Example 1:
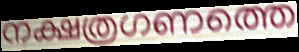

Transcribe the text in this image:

നക്ഷത്രഗണത്തെ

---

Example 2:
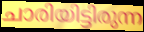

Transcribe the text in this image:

ചാരിയിട്ടിരുന്ന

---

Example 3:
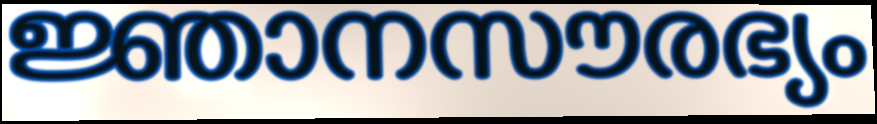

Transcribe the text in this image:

ജ്ഞാനസൗരഭ്യം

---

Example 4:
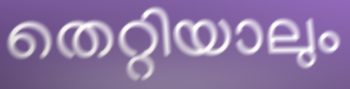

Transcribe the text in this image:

തെറ്റിയാലും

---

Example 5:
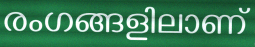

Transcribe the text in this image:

രംഗങ്ങളിലാണ്